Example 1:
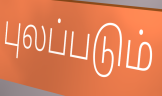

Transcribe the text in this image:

புலப்படும்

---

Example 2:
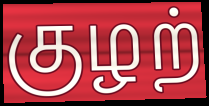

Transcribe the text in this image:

குழற்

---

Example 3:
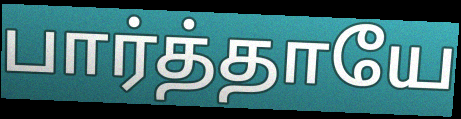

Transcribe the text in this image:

பார்த்தாயே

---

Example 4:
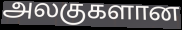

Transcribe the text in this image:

அலகுகளான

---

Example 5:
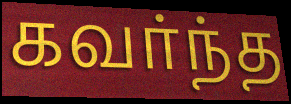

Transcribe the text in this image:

கவர்ந்த